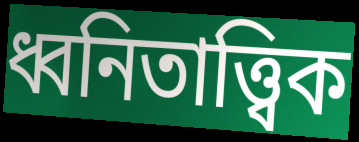
ধ্বনিতাত্ত্বিক